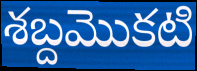
శబ్దమొకటి